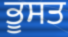
ਭੂਸਤ